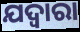
ଯଦ୍ୱାରା